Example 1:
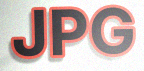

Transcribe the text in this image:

JPG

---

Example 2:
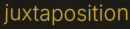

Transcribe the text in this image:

juxtaposition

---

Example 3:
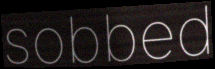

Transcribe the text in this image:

sobbed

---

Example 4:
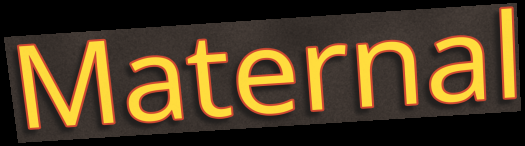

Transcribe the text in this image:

Maternal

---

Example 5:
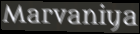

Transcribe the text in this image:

Marvaniya